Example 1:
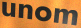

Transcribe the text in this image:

unom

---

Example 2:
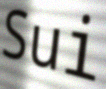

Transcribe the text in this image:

Sui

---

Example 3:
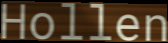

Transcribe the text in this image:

Hollen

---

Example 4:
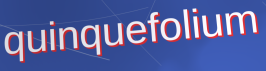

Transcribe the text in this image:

quinquefolium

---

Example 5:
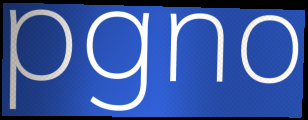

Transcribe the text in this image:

pgno